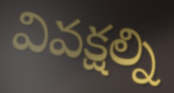
వివక్షల్ని